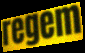
regem